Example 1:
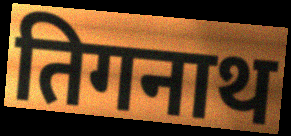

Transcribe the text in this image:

तिगनाथ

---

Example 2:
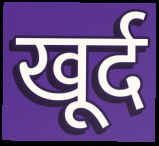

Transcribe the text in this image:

खूर्द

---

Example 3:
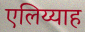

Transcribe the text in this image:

एलिय्याह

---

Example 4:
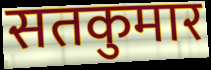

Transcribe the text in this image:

सतकुमार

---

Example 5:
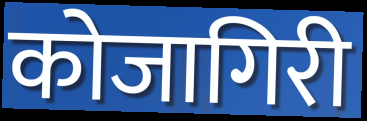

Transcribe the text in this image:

कोजागिरी